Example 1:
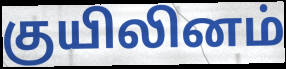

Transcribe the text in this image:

குயிலினம்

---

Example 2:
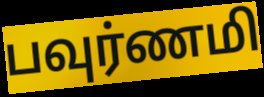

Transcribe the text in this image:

பவுர்ணமி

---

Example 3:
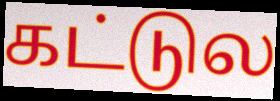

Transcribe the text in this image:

கட்டுல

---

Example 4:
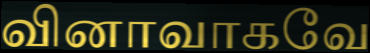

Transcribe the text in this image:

வினாவாகவே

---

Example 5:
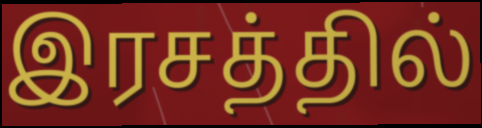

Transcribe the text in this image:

இரசத்தில்